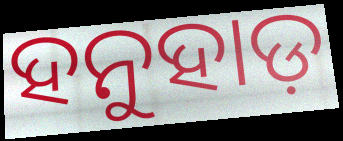
ହନୁହାଡ଼